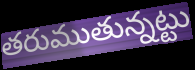
తరుముతున్నట్టు